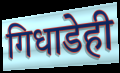
गिधाडेही